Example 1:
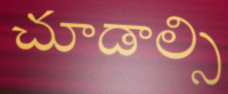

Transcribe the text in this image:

చూడాల్సి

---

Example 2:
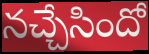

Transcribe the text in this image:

నచ్చేసిందో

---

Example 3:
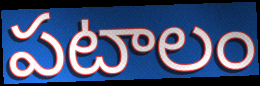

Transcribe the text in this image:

పటాలం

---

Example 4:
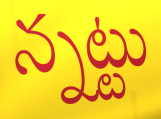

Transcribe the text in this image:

న్నట్టు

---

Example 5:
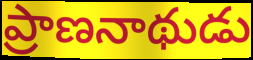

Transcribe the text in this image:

ప్రాణనాథుడు